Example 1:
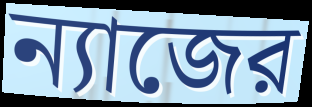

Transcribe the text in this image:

ন্যাজের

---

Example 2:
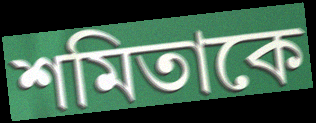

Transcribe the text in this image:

শমিতাকে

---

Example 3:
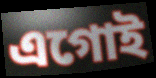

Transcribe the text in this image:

এগোই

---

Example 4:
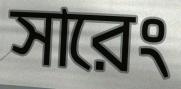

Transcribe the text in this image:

সারেং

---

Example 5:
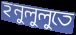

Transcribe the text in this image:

হনুলুলুতে